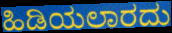
ಹಿಡಿಯಲಾರದು